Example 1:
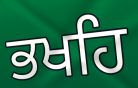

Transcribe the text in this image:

ਭਖਹਿ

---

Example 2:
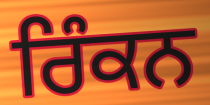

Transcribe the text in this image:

ਰਿੰਕਨ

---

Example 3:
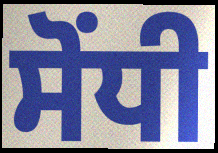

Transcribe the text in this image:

ਸੋਂਧੀ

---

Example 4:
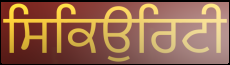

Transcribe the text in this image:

ਸਿਕਿਉਰਿਟੀ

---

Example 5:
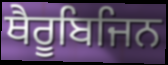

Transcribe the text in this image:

ਥੈਰੂਬਿਜਿਨ